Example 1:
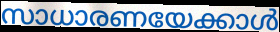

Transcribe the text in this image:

സാധാരണയേക്കാൾ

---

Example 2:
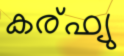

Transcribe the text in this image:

കര്ഫ്യു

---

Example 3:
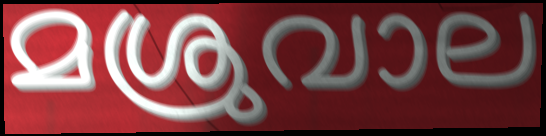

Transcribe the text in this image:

മശ്രുവാല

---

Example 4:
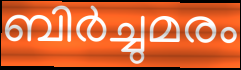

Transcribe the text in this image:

ബിർച്ചുമരം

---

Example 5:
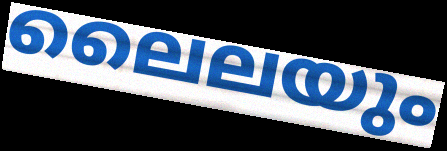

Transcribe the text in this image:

ലൈലയും